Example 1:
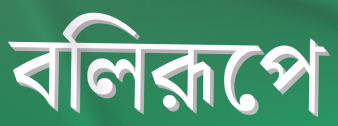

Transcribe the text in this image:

বলিরূপে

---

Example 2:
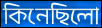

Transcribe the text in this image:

কিনেছিলো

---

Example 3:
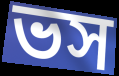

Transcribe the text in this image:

ভস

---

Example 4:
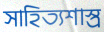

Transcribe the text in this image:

সাহিত্যশাস্ত্র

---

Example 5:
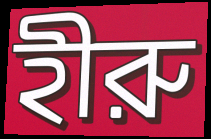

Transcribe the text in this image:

হীরু